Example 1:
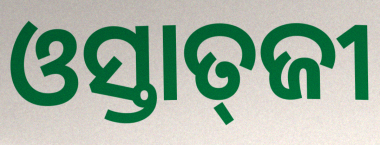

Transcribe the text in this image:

ଓସ୍ତାତ୍‌ଜୀ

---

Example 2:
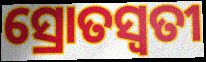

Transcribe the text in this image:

ସ୍ରୋତସ୍ଵତୀ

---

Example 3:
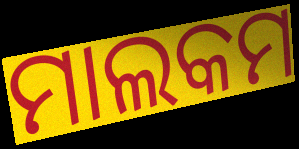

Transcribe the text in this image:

ମାଲକମ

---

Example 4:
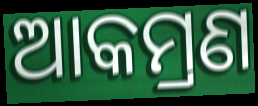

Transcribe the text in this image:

ଆକମ୍ରଣ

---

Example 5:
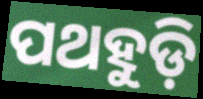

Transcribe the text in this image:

ପଥହୁଡ଼ି